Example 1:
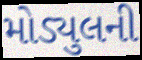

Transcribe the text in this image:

મોડ્યુલની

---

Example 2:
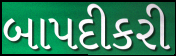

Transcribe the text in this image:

બાપદીકરી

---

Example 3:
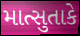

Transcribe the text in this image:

માત્સુતાકે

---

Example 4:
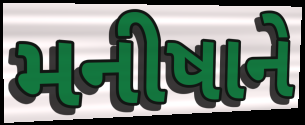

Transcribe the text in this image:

મનીષાને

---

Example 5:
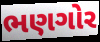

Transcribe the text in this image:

ભણગોર